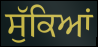
ਸੁੱਕਿਆਂ